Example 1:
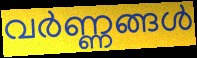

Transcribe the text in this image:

വർണ്ണങ്ങൾ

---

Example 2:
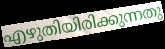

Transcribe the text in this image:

എഴുതിയിരിക്കുന്നതു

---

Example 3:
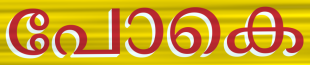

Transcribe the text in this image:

പോകെ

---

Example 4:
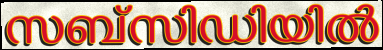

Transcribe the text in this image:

സബ്സിഡിയിൽ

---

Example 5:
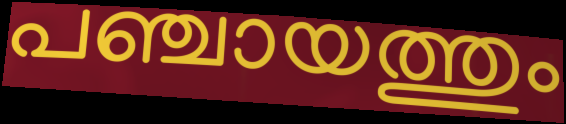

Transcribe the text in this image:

പഞ്ചായത്തും